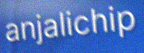
anjalichip